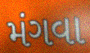
મંગવા